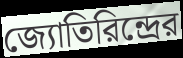
জ্যোতিরিন্দ্রের